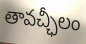
తావచ్ఛీలం